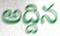
అద్దిన